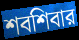
শবশিবার